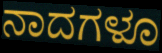
ನಾದಗಳೂ